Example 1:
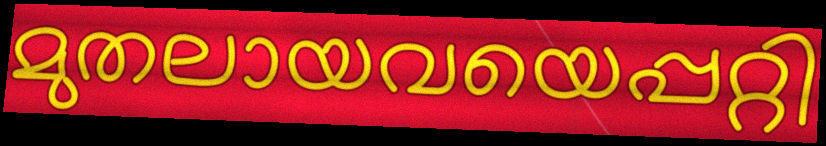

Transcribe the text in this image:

മുതലായവയെപ്പറ്റി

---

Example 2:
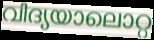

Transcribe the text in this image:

വിദ്യയാലൊറ്റ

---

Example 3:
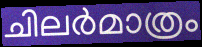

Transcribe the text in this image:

ചിലർമാത്രം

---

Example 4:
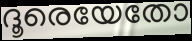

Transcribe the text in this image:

ദൂരെയേതോ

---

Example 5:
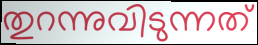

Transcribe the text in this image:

തുറന്നുവിടുന്നത്